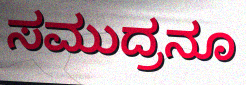
ಸಮುದ್ರನೂ